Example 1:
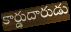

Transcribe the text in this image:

కార్డుదారుడు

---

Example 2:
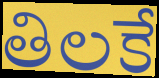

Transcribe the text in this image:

తిలకే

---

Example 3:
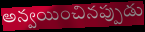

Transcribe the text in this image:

అన్వయించినప్పుడు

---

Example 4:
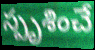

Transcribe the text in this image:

స్పృశించే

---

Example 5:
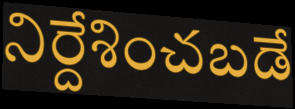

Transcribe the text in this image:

నిర్దేశించబడే